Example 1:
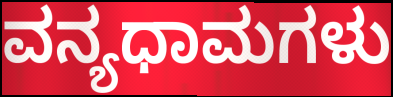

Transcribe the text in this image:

ವನ್ಯಧಾಮಗಳು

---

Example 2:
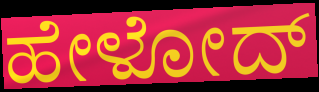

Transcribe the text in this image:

ಹೇಳೋದ್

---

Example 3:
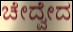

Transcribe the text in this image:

ಚೇದ್ವೇದ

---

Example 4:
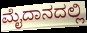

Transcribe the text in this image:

ಮೈದಾನದಲ್ಲಿ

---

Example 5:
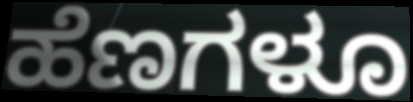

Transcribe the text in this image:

ಹೆಣಗಳೂ